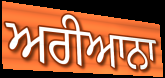
ਅਰੀਆਨਾ